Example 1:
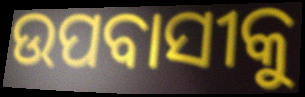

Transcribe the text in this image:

ଉପବାସୀକୁ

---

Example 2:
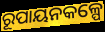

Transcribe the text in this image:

ରୂପାୟନକଳ୍ପେ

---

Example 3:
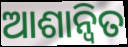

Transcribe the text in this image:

ଆଶାନ୍ବିତ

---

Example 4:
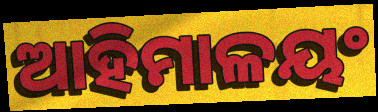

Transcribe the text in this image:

ଆହିମାଳୟଂ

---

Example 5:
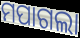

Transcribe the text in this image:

ମପାଗଲା